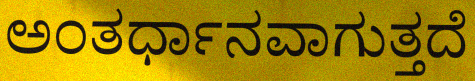
ಅಂತರ್ಧಾನವಾಗುತ್ತದೆ